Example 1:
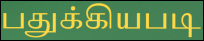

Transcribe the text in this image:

பதுக்கியபடி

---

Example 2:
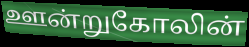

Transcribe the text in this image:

ஊன்றுகோலின்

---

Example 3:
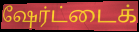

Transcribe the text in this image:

ஷேர்ட்டைக்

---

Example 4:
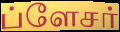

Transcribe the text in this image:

ப்ளேசர்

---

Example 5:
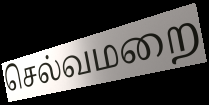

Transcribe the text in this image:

செல்வமறை